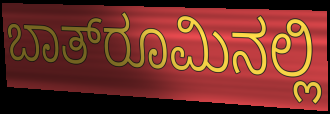
ಬಾತ್‌ರೂಮಿನಲ್ಲಿ